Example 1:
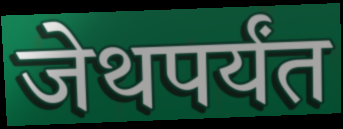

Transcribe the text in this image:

जेथपर्यंत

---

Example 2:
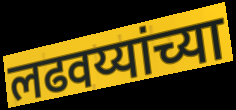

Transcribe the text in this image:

लढवय्यांच्या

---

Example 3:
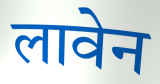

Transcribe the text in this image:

लावेन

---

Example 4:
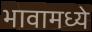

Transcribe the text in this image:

भावामध्ये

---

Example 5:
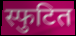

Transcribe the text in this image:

स्फुटित